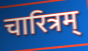
चारित्रम्